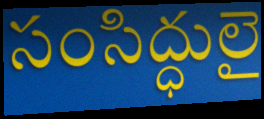
సంసిద్ధులై